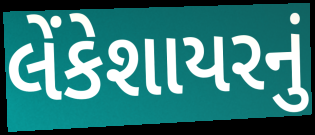
લેંકેશાયરનું